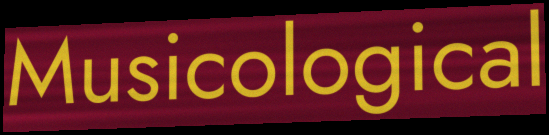
Musicological